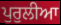
ਪੁਰੁਲੀਆ